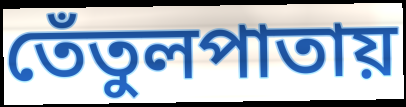
তেঁতুলপাতায়